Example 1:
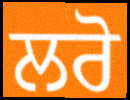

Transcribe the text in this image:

ਲਰੋ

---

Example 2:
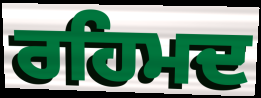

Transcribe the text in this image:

ਰਹਿਮਦ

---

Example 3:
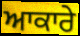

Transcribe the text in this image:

ਆਕਾਰੇ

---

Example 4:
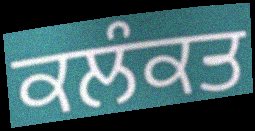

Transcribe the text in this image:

ਕਲੰਕਤ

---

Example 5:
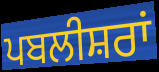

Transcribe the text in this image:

ਪਬਲੀਸ਼ਰਾਂ